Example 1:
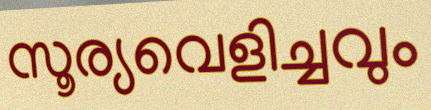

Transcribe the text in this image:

സൂര്യവെളിച്ചവും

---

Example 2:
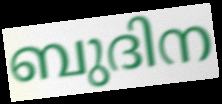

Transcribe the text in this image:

ബുദിന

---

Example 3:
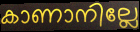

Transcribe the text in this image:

കാണാനില്ലേ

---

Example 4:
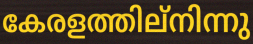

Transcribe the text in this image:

കേരളത്തില്നിന്നു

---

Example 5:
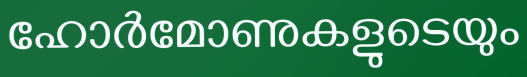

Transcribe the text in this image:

ഹോർമോണുകളുടെയും